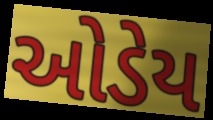
ઓડેય